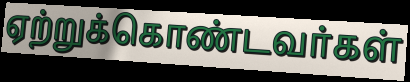
ஏற்றுக்கொண்டவர்கள்